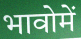
भावोमें